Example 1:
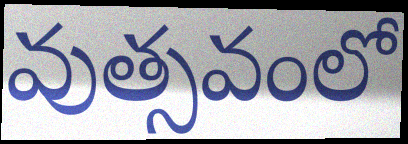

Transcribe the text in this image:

వుత్సవంలో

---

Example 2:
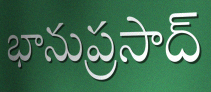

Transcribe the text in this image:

భానుప్రసాద్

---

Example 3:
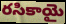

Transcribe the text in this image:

రసికాయై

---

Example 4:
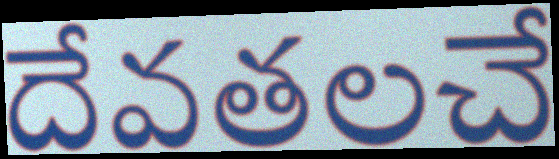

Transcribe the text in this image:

దేవతలచే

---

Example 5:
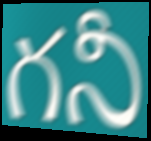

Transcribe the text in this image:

గనీ